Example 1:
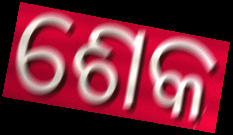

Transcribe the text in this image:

ଶେକ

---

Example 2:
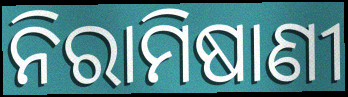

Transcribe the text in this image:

ନିରାମିଷାଣୀ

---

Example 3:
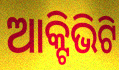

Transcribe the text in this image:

ଆକ୍ଟିଭିଟି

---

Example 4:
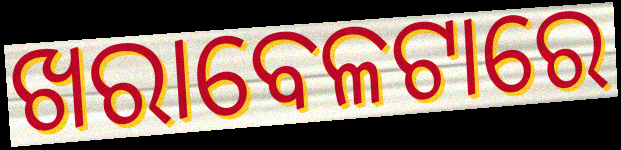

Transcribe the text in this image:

ଖରାବେଳଟାରେ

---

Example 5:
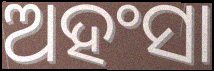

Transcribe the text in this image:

ଅହଂସା